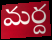
మర్ద